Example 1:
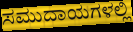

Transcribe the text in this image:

ಸಮುದಾಯಗಳಲ್ಲಿ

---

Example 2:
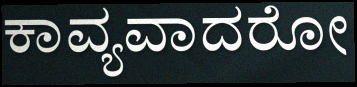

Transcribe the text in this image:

ಕಾವ್ಯವಾದರೋ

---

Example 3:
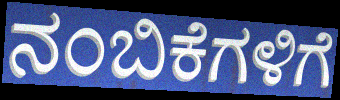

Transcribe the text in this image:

ನಂಬಿಕೆಗಳಿಗೆ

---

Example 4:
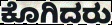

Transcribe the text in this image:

ಕೊಗಿದರು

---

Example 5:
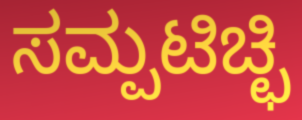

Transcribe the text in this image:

ಸಮ್ಪಟಿಚ್ಛಿ